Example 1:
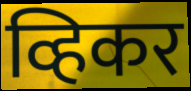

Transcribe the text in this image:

व्हिकर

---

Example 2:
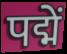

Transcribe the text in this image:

पद्में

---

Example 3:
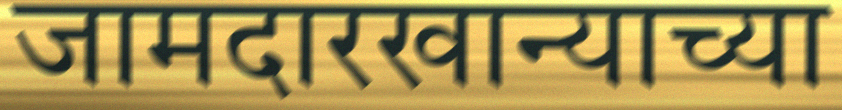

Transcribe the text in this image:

जामदारखान्याच्या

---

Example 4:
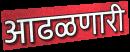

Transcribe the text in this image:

आढळणारी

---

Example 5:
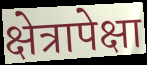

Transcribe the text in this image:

क्षेत्रापेक्षा